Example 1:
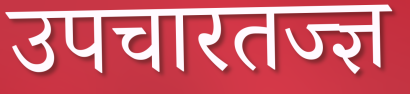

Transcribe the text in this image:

उपचारतज्ज्ञ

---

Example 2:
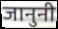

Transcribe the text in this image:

जानुनी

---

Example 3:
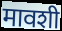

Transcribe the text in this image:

मावशी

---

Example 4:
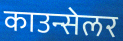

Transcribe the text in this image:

काउन्सेलर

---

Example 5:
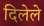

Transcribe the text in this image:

दिलेले